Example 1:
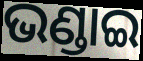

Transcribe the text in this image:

ଭଣ୍ଡାଇ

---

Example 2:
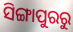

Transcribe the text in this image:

ସିଙ୍ଗାପୁରରୁ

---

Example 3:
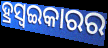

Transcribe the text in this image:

ହ୍ରସ୍ୱଇକାରର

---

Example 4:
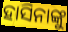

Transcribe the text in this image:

ହାସିନାଙ୍କୁ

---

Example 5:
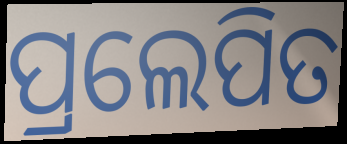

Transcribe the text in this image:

ପ୍ରଲେପିତ